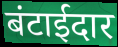
बंटाईदार